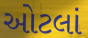
ઓટલાં